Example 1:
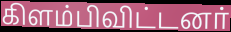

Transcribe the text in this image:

கிளம்பிவிட்டனர்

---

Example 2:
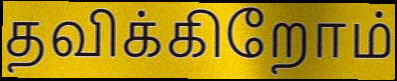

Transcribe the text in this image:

தவிக்கிறோம்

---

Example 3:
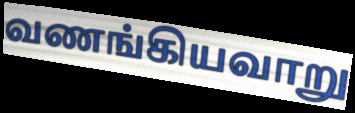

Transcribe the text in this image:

வணங்கியவாறு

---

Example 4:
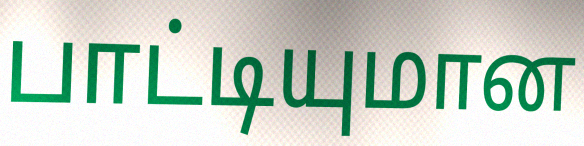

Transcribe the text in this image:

பாட்டியுமான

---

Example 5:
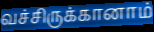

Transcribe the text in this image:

வச்சிருக்கானாம்